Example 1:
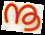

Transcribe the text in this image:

നൂ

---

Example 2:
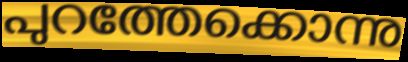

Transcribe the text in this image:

പുറത്തേക്കൊന്നു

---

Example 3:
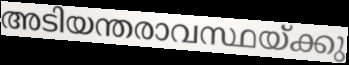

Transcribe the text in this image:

അടിയന്തരാവസ്ഥയ്ക്കു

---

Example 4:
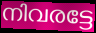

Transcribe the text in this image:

നിവരട്ടേ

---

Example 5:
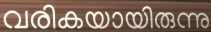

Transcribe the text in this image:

വരികയായിരുന്നു